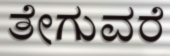
ತೇಗುವರೆ